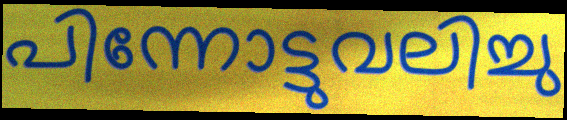
പിന്നോട്ടുവലിച്ചു